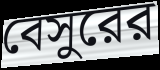
বেসুরের